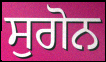
ਸੁਗੋਨ